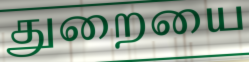
துறையை